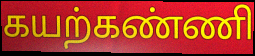
கயற்கண்ணி